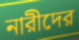
নারীদের